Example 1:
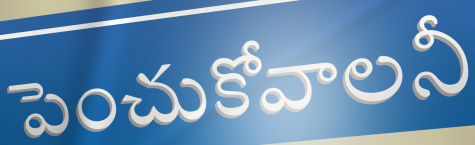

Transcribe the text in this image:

పెంచుకోవాలనీ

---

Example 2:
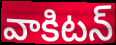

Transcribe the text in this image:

వాకిటన్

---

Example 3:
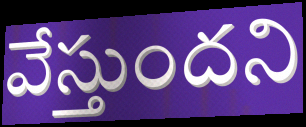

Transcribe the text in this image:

వేస్తుందని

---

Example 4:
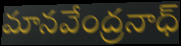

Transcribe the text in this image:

మానవేంద్రనాధ్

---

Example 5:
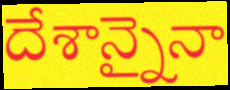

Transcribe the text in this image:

దేశాన్నైనా